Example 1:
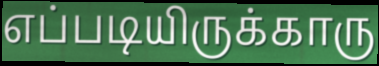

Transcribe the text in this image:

எப்படியிருக்காரு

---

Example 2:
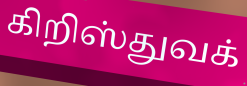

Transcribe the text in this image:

கிறிஸ்துவக்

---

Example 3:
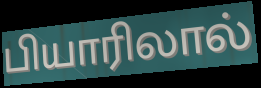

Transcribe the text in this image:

பியாரிலால்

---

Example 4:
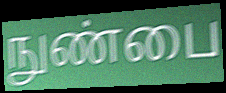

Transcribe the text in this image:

நுண்பை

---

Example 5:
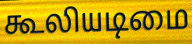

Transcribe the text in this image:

கூலியடிமை